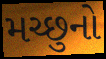
મચ્છુનો